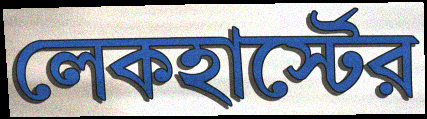
লেকহার্স্টের